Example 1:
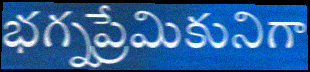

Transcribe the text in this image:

భగ్నప్రేమికునిగా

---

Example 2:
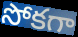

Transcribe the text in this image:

సోకగా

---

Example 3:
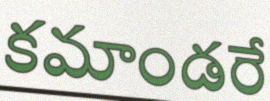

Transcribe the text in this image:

కమాండరే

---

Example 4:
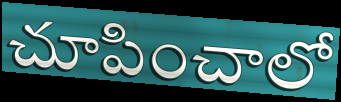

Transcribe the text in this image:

చూపించాలో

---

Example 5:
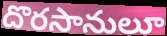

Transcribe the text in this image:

దొరసానులూ